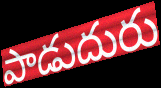
పాడుదురు